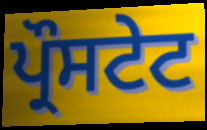
ਪ੍ਰੌਸਟੇਟ